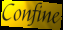
Confine